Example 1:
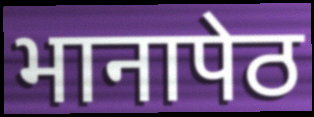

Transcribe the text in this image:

भानापेठ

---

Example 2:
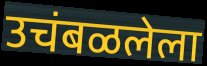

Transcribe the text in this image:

उचंबळलेला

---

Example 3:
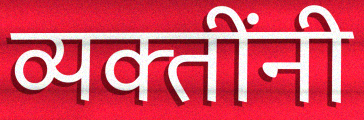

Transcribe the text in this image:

व्यक्‍तींनी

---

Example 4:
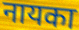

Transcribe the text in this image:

नायका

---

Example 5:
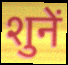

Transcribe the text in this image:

शुनें